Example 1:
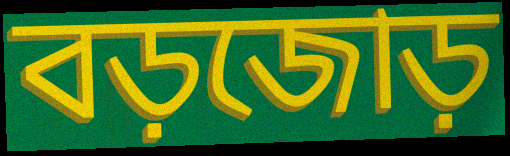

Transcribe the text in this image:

বড়জোড়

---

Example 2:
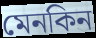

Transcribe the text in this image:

মেনকিন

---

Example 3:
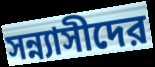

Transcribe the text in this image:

সন্ন্যাসীদের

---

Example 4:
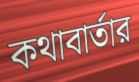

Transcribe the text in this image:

কথাবার্তার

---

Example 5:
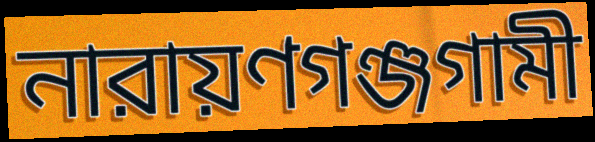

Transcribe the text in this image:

নারায়ণগঞ্জগামী